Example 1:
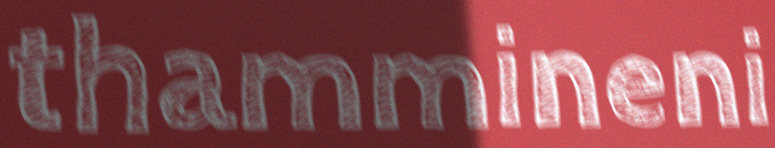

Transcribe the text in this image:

thammineni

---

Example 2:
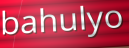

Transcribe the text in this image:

bahulyo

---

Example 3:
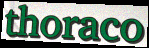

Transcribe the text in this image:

thoraco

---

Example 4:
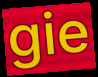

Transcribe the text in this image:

gie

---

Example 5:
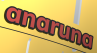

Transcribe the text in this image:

anaruna